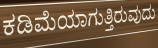
ಕಡಿಮೆಯಾಗುತ್ತಿರುವುದು